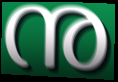
നു